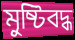
মুষ্টিবদ্ধ